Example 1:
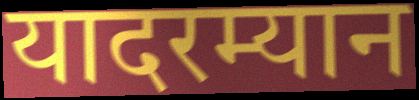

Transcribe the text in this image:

यादरम्यान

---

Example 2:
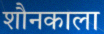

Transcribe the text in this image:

शौनकाला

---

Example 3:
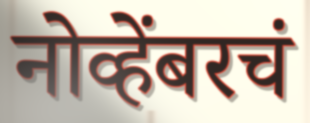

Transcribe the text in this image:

नोव्हेंबरचं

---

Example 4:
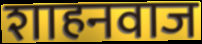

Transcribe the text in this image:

शाहनवाज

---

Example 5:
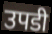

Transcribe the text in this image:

उपडी